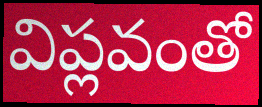
విప్లవంతో